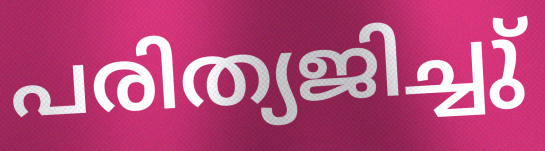
പരിത്യജിച്ചു്